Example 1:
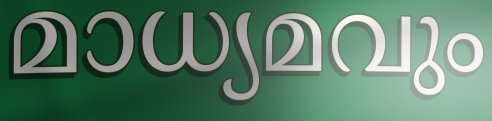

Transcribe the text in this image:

മാധ്യമവും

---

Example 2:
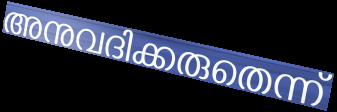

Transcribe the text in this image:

അനുവദിക്കരുതെന്ന്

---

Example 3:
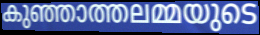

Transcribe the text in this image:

കുഞ്ഞാത്തലമ്മയുടെ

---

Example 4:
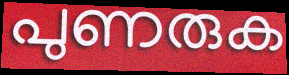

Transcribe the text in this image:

പുണരുക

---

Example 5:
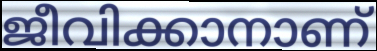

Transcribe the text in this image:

ജീവിക്കാനാണ്